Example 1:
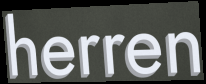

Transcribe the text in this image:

herren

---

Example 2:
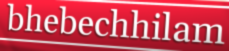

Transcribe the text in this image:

bhebechhilam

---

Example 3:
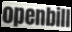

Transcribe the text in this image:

openbill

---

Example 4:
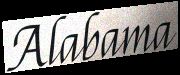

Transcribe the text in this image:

Alabama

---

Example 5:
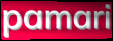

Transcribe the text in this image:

pamari